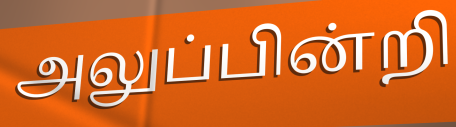
அலுப்பின்றி